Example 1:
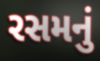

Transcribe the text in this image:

રસમનું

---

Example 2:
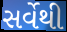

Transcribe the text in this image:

સર્વેથી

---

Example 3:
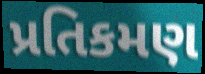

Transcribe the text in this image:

પ્રતિકમણ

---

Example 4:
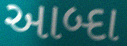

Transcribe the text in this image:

આબ્દા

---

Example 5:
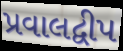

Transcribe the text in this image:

પ્રવાલદ્વીપ